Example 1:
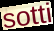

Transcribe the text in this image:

sotti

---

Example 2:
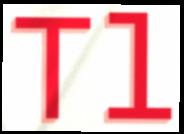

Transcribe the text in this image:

Tl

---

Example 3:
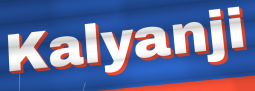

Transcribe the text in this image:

Kalyanji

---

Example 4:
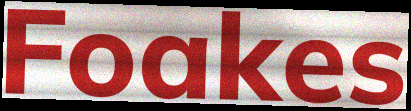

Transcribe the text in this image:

Foakes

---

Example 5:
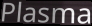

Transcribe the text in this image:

Plasma